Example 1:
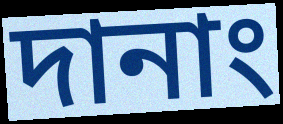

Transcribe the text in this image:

দানাং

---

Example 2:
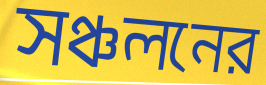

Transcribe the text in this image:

সঞ্চলনের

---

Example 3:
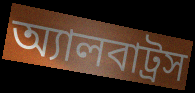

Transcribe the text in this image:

অ্যালবাট্রস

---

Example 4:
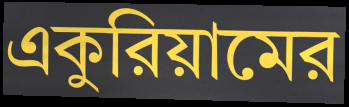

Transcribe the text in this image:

একুরিয়ামের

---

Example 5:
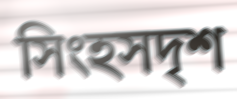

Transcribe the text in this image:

সিংহসদৃশ